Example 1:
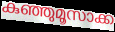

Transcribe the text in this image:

കുഞ്ഞുമൂസാക്ക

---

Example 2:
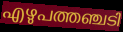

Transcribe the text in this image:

എഴുപത്തഞ്ചടി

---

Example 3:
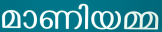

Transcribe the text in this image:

മാണിയമ്മ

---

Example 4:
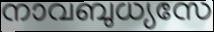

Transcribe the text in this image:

നാവബുധ്യസേ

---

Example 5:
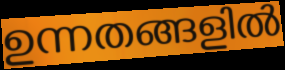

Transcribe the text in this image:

ഉന്നതങ്ങളിൽ